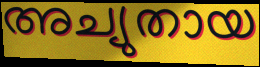
അച്യുതായ